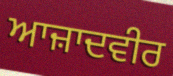
ਆਜ਼ਾਦਵੀਰ